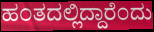
ಹಂತದಲ್ಲಿದ್ದಾರೆಂದು